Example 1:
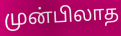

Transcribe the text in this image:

முன்பிலாத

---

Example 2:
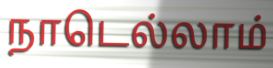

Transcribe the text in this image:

நாடெல்லாம்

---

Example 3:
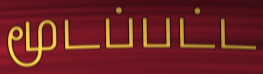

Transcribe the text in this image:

மூடப்பட்ட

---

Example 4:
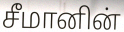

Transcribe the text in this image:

சீமானின்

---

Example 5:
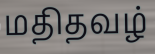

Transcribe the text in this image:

மதிதவழ்